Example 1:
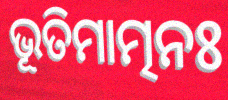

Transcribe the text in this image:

ଭୂତିମାତ୍ମନଃ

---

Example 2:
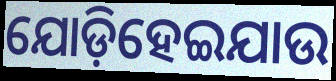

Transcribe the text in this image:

ଯୋଡ଼ିହେଇଯାଉ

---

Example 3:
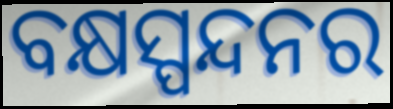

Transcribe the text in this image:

ବକ୍ଷସ୍ପନ୍ଦନର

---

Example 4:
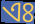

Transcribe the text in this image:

ଏଃ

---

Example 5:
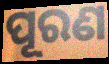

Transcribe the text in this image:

ପୂରଣ